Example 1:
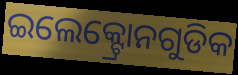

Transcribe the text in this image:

ଇଲେକ୍ଟ୍ରୋନଗୁଡିକ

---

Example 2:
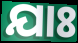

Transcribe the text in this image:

ଯାଃ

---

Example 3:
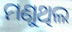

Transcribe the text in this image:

ମଣୁଥିଲ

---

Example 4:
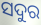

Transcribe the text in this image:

ସଦୁର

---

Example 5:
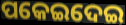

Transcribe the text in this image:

ପକେଇଦେଇ